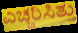
ಎಚ್ಚರಿಸಿತ್ತು